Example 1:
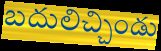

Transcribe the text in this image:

బదులిచ్చిండు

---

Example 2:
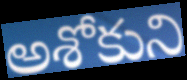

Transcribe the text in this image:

అశోకుని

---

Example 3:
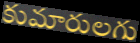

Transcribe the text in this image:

కుమారులగు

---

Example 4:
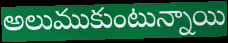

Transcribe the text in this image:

అలుముకుంటున్నాయి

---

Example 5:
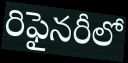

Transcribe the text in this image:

రిఫైనరీలో